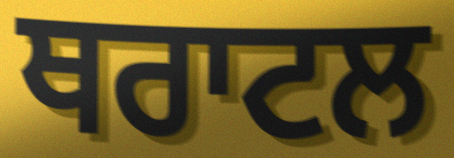
ਥਰਾਟਲ